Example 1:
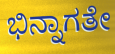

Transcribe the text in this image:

ಭಿನ್ನಾಗತೇ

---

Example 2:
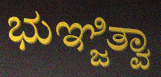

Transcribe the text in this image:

ಭುಞ್ಜಿತ್ವಾ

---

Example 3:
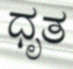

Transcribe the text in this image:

ಧೃತ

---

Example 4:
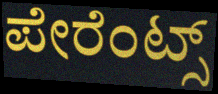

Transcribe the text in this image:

ಪೇರೆಂಟ್ಸ್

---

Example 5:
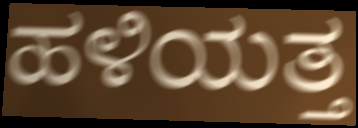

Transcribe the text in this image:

ಹಳಿಯತ್ತ